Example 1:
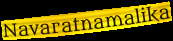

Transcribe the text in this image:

Navaratnamalika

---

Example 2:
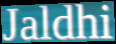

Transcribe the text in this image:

Jaldhi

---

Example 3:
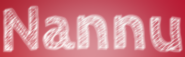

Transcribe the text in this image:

Nannu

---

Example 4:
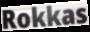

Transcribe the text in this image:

Rokkas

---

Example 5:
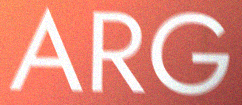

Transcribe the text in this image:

ARG